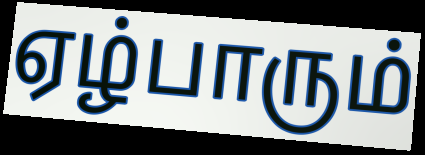
ஏழ்பாரும்